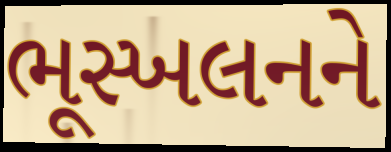
ભૂસ્ખલનને